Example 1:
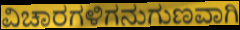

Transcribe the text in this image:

ವಿಚಾರಗಳಿಗನುಗುಣವಾಗಿ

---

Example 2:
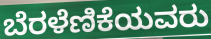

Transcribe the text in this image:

ಬೆರಳೆಣಿಕೆಯವರು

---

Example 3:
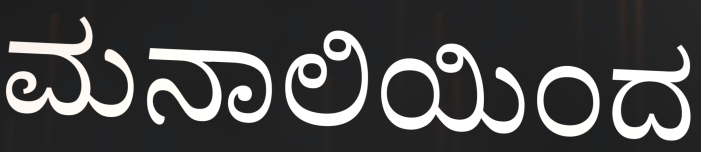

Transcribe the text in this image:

ಮನಾಲಿಯಿಂದ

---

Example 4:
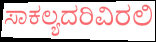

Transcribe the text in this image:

ಸಾಕಲ್ಯದರಿವಿರಲಿ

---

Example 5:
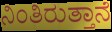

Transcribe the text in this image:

ನಿಂತಿರುತ್ತಾನೆ